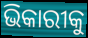
ଭିକାରୀକୁ